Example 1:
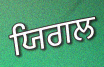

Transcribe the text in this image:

ਯਿਗਲ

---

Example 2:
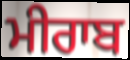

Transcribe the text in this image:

ਮੀਰਾਬ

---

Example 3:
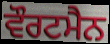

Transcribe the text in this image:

ਵੌਰਟਮੈਨ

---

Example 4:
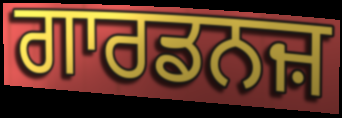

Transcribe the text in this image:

ਗਾਰਡਨਜ਼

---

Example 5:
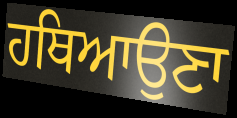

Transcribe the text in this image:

ਹਥਿਆਉਣਾ